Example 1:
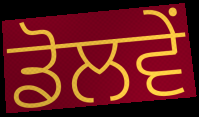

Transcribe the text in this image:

ਡੋਲਵੇਂ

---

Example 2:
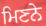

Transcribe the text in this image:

ਮਿਣਨੇ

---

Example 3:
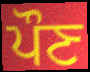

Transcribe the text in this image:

ਪੌਣ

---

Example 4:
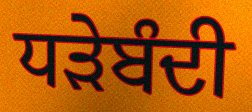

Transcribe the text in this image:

ਧੜੇਬੰਦੀ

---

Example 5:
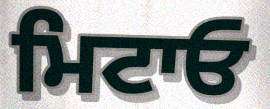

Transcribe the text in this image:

ਮਿਟਾਓ